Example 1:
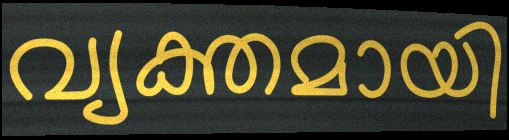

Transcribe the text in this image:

വ്യക്തമായി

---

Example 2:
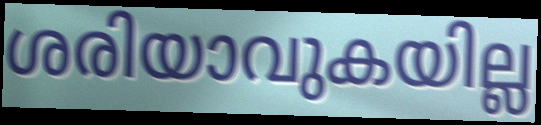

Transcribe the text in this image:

ശരിയാവുകയില്ല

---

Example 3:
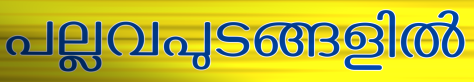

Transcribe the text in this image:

പല്ലവപുടങ്ങളിൽ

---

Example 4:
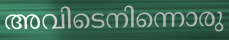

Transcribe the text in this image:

അവിടെനിന്നൊരു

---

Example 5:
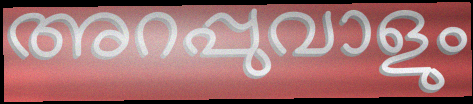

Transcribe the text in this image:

അറപ്പുവാളും